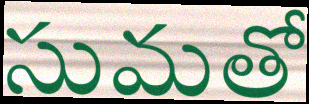
సుమతో